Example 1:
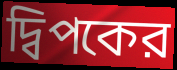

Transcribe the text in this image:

দ্বিপকের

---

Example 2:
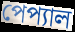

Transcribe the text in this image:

পেপ্যাল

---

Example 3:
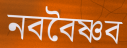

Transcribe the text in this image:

নববৈষ্ণব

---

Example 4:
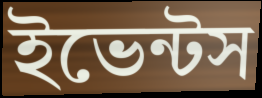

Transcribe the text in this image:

ইভেন্টস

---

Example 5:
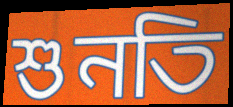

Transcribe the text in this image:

শুনতি